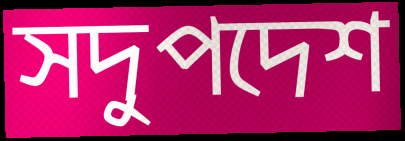
সদুপদেশ